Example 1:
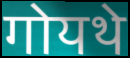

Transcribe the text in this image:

गोयथे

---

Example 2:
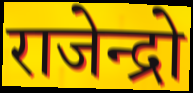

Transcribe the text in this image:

राजेन्द्रो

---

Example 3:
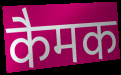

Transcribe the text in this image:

कैमक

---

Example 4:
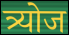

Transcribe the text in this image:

त्र्योज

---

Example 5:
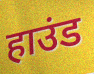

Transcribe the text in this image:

हाउंड